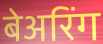
बेअरिंग